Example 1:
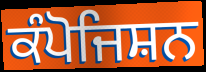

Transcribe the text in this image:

ਕੰਪੋਜਿਸ਼ਨ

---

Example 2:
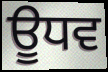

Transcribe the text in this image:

ਊਧਵ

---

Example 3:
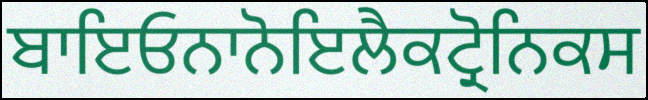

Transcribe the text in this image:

ਬਾਇਓਨਾਨੋਇਲੈਕਟ੍ਰੋਨਿਕਸ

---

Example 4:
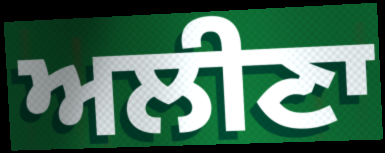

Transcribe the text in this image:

ਅਲੀਣਾ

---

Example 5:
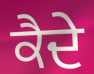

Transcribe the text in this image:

ਕੈਦੇ